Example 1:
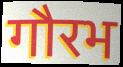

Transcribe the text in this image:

गौरभ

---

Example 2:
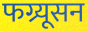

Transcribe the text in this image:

फग्र्यूसन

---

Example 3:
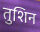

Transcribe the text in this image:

तुशिन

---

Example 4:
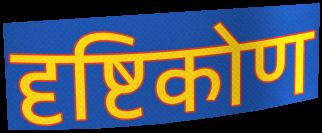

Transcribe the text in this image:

दृष्टिकोण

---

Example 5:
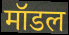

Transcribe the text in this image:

मॉडल